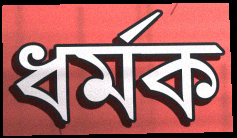
ধৰ্মক